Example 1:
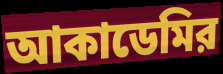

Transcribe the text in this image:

আকাডেমির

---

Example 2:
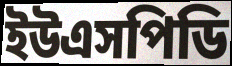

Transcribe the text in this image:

ইউএসপিডি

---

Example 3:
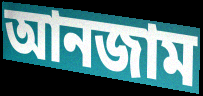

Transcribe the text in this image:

আনজাম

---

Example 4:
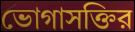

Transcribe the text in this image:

ভোগাসক্তির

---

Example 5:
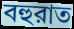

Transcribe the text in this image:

বহুরাত